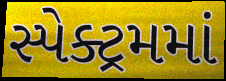
સ્પેક્ટ્રમમાં